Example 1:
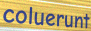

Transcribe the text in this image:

coluerunt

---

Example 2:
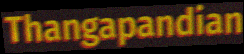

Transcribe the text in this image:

Thangapandian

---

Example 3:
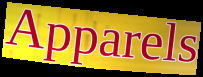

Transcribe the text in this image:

Apparels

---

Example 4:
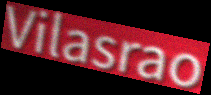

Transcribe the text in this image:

Vilasrao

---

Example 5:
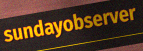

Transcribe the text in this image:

sundayobserver